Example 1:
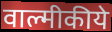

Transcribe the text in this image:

वाल्मीकीये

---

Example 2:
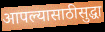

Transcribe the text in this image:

आपल्यासाठीसुद्धा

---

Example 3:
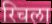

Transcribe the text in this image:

रिचला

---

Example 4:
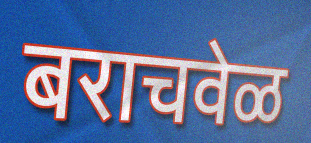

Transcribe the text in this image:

बराचवेळ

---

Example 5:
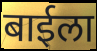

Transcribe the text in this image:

बाईला